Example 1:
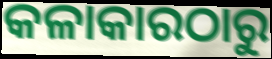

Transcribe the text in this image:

କଳାକାରଠାରୁ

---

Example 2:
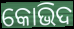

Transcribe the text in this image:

କୋଭିଦ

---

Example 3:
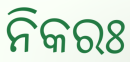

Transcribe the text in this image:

ନିକରଃ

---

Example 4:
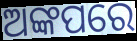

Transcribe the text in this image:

ଅଙ୍କପରେ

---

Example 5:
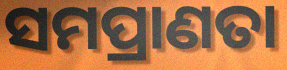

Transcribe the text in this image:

ସମପ୍ରାଣତା